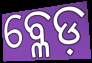
ବ୍ଳେଡ଼